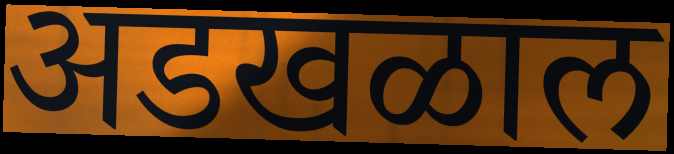
अडखळाल